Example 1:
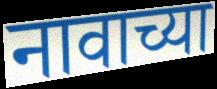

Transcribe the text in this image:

नावाच्या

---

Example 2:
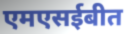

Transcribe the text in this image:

एमएसईबीत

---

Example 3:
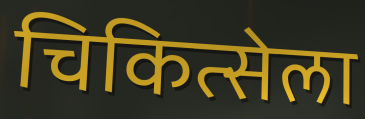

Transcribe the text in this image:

चिकित्सेला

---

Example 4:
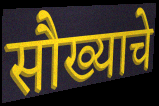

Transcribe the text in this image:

सौख्याचे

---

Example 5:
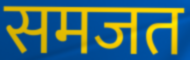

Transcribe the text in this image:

समजत